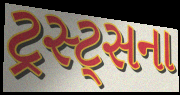
ટ્રસ્ટ્સના